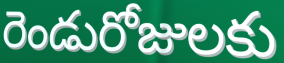
రెండురోజులకు